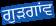
ਗੁੜਗਾਂਵ